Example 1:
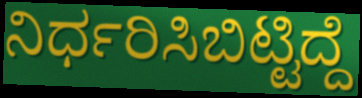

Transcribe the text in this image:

ನಿರ್ಧರಿಸಿಬಿಟ್ಟಿದ್ದೆ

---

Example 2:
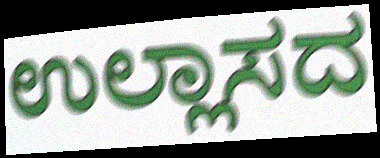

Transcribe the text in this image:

ಉಲ್ಲಾಸದ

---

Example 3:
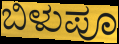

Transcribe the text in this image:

ಬಿಳುಪೂ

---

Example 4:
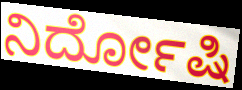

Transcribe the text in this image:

ನಿರ್ದೋಷಿ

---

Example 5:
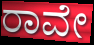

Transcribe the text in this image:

ರಾವೇ